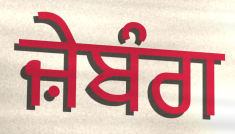
ਜ਼ੇਬੰਗ